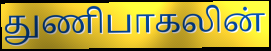
துணிபாகலின்